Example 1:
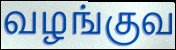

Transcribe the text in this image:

வழங்குவ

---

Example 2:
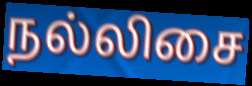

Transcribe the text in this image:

நல்லிசை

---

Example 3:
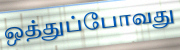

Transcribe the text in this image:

ஒத்துப்போவது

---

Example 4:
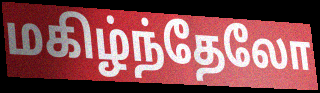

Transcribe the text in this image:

மகிழ்ந்தேலோ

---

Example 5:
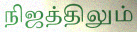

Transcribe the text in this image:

நிஜத்திலும்